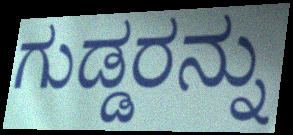
ಗುಡ್ಡರನ್ನು